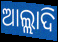
ଆଲ୍ଲାଦି